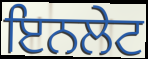
ਇਨਲੇਟ